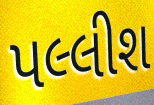
પલ્લીશ